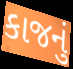
કાજનું